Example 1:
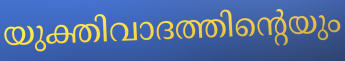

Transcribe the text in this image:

യുക്തിവാദത്തിന്റെയും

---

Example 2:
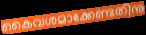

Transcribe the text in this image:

കൈവശമാക്കേണ്ടതിനു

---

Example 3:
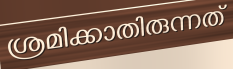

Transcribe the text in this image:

ശ്രമിക്കാതിരുന്നത്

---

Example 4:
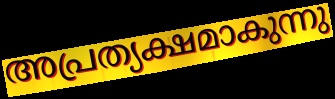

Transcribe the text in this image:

അപ്രത്യക്ഷമാകുന്നു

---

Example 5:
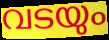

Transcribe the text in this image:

വടയും